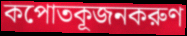
কপোতকূজনকরুণ